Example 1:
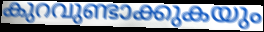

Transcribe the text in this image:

കുറവുണ്ടാക്കുകയും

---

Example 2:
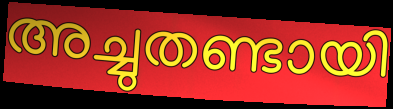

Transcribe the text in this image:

അച്ചുതണ്ടായി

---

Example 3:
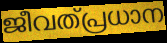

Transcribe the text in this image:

ജീവത്പ്രധാന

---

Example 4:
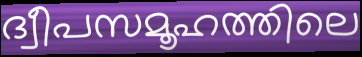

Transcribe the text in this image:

ദ്വീപസമൂഹത്തിലെ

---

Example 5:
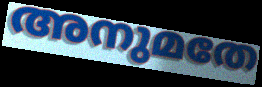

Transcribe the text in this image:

അനുമതേ